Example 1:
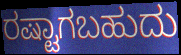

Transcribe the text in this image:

ರಷ್ಟಾಗಬಹುದು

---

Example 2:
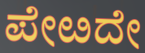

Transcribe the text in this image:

ಪೇೞದೇ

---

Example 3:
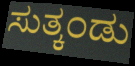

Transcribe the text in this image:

ಸುತ್ಕಂಡು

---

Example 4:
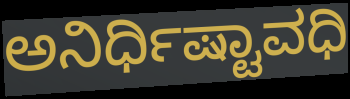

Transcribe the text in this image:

ಅನಿರ್ಧಿಷ್ಟಾವಧಿ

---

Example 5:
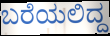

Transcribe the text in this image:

ಬರೆಯಲಿದ್ದ